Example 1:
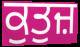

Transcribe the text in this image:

ਕੁਤੁਜ਼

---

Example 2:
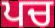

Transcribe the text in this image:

ਪਚ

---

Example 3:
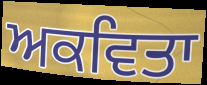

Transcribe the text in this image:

ਅਕਵਿਤਾ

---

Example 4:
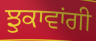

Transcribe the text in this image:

ਝੁਕਾਵਾਂਗੀ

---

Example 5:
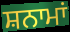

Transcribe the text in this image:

ਸ਼ਨਾਮਾਂ